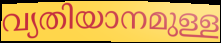
വ്യതിയാനമുള്ള